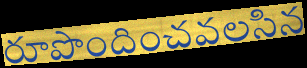
రూపొందించవలసిన